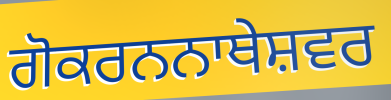
ਗੋਕਰਨਨਾਥੇਸ਼ਵਰ